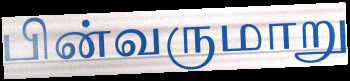
பின்வருமாறு